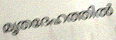
മൃതദേഹത്തിൽ